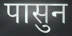
पासुन